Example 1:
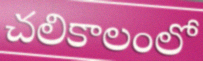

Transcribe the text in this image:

చలికాలంలో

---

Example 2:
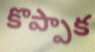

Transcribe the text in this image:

కొప్పాక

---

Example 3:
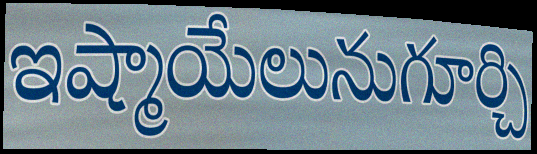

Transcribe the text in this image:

ఇష్మాయేలునుగూర్చి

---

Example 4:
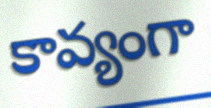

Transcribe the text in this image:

కావ్యంగా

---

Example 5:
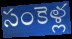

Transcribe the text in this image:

సంకెళ్ల